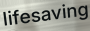
lifesaving